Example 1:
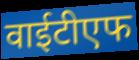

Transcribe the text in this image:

वाईटीएफ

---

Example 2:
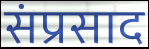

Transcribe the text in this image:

संप्रसाद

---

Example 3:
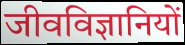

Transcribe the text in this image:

जीवविज्ञानियों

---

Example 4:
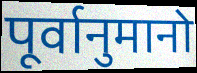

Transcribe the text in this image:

पूर्वानुमानो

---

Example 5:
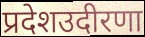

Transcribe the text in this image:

प्रदेशउदीरणा